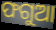
ଫଗୁଆ